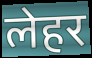
लेहर